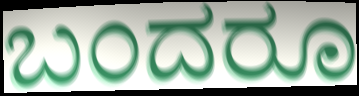
ಬಂದರೂ